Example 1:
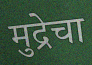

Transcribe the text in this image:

मुद्रेचा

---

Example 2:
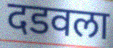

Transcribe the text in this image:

दडवला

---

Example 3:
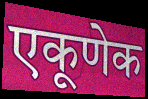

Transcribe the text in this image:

एकूणेक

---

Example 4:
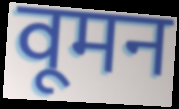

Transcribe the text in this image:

वूमन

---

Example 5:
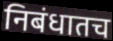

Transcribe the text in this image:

निबंधातच